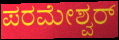
ಪರಮೇಶ್ವರ್